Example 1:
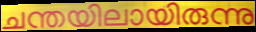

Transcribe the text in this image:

ചന്തയിലായിരുന്നു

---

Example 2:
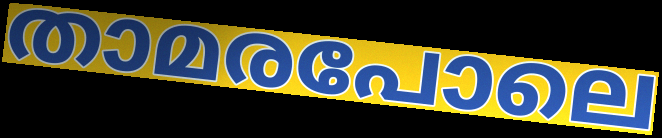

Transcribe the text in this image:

താമരപോലെ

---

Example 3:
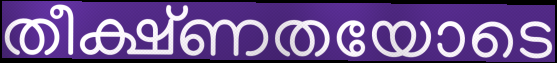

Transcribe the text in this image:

തീക്ഷ്ണതയോടെ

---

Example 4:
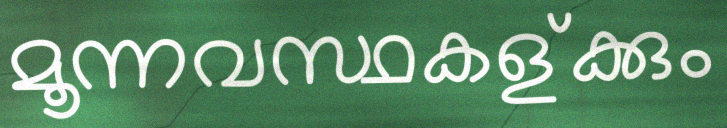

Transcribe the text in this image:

മൂന്നവസ്ഥകള്ക്കും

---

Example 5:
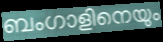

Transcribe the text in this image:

ബംഗാളിനെയും